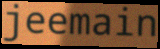
jeemain